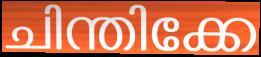
ചിന്തിക്കേ